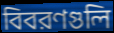
বিবরণগুলি